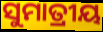
ସୁମାତ୍ରୀୟ